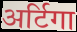
अर्टिगा